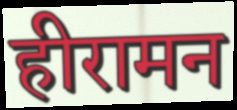
हीरामन